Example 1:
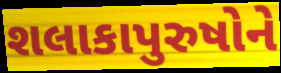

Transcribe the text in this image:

શલાકાપુરુષોને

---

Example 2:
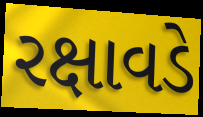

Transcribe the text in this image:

રક્ષાવડે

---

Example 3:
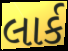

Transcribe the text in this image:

લાર્ક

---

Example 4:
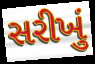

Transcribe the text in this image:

સરીખું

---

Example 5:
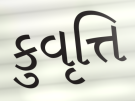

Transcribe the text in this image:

કુવૃત્તિ